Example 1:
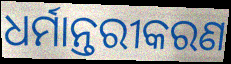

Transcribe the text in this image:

ଧର୍ମାନ୍ତରୀକରଣ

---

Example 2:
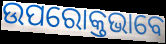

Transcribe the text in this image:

ଉପରୋକ୍ତଭାବେ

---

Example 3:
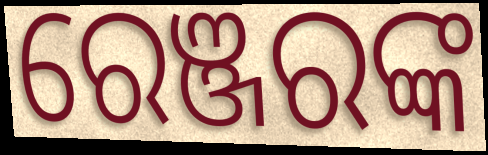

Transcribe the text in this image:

ରେଞ୍ଜରଙ୍କ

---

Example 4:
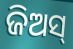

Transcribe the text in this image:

ଜିଅସ୍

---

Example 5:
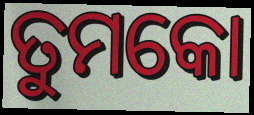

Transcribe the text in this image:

ତୁମକୋ